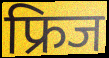
फ्रिज